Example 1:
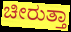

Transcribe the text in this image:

ಚೀರುತ್ತಾ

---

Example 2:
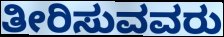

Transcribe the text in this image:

ತೀರಿಸುವವರು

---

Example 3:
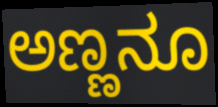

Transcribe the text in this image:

ಅಣ್ಣನೂ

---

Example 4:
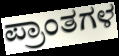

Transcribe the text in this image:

ಪ್ರಾಂತಗಳ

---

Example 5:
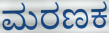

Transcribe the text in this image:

ಮರಣಕ